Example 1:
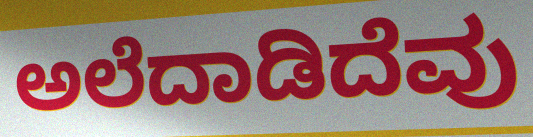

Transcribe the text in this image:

ಅಲೆದಾಡಿದೆವು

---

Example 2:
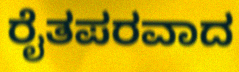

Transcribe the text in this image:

ರೈತಪರವಾದ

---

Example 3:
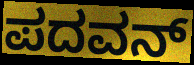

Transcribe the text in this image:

ಪದವನ್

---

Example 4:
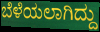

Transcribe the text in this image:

ಬೆಳೆಯಲಾಗಿದ್ದು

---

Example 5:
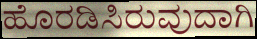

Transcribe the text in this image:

ಹೊರಡಿಸಿರುವುದಾಗಿ